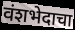
वंशभेदाचा